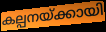
കല്പനയ്ക്കായി